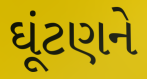
ઘૂંટણને